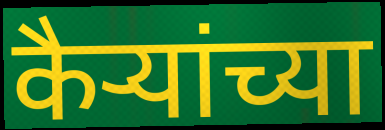
कैऱ्यांच्या